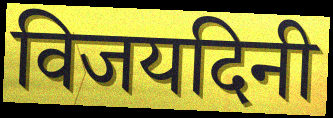
विजयदिनी